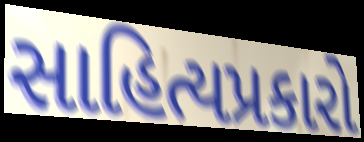
સાહિત્યપ્રકારો